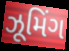
ઝૂમિંગ